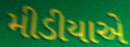
મીડીયાએ